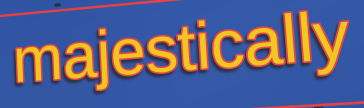
majestically